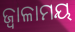
ଜ୍ୱାଳାମୟ